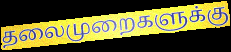
தலைமுறைகளுக்கு